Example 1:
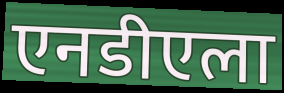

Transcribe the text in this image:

एनडीएला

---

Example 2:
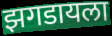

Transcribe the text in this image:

झगडायला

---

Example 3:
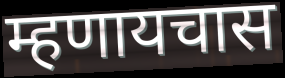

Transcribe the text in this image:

म्हणायचास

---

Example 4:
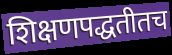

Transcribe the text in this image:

शिक्षणपद्धतीतच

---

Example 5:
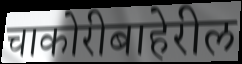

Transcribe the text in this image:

चाकोरीबाहेरील